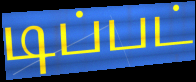
டிப்பட்